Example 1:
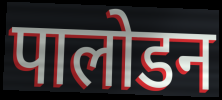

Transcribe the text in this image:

पालोडन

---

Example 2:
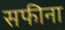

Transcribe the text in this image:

सफीना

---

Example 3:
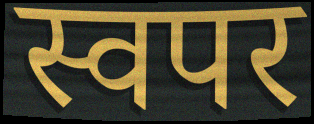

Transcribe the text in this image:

स्वपर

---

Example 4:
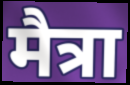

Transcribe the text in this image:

मैत्रा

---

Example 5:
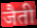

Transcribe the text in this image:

जैती